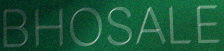
BHOSALE